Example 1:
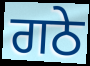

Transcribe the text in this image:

ਗਠੇ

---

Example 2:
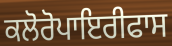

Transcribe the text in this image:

ਕਲੋਰੋਪਾਇਰੀਫਾਸ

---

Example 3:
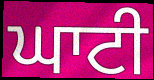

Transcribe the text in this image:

ਘਾਟੀ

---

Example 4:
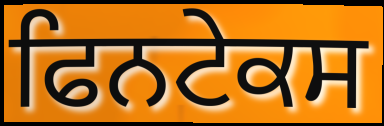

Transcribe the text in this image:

ਫਿਨਟੇਕਸ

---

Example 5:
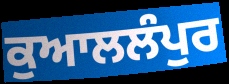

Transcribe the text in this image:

ਕੁਆਲਲੰਪੁਰ